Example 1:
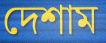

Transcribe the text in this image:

দেশাম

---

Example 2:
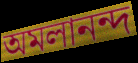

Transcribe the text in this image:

অমলানন্দ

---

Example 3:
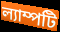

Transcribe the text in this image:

ল্যাম্পটি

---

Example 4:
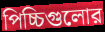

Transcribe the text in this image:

পিচ্চিগুলোর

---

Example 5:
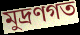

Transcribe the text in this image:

মুদ্রণগত